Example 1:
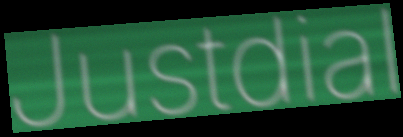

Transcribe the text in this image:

Justdial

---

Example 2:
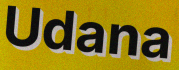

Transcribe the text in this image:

Udana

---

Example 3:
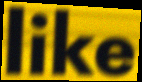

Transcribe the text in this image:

like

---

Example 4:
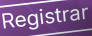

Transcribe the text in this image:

Registrar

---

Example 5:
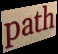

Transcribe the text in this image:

path